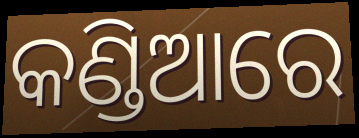
କଣ୍ଡିଆରେ